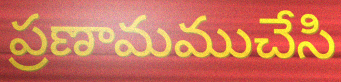
ప్రణామముచేసి